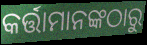
କର୍ତ୍ତାମାନଙ୍କଠାରୁ